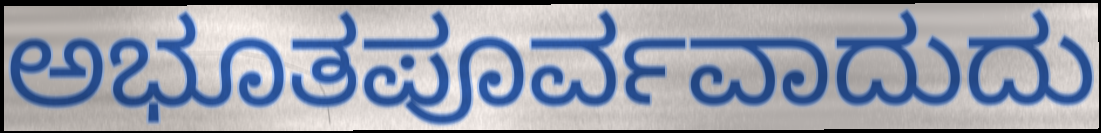
ಅಭೂತಪೂರ್ವವಾದುದು